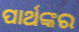
ପାର୍ଥଙ୍କର